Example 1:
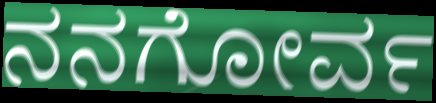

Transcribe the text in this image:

ನನಗೋರ್ವ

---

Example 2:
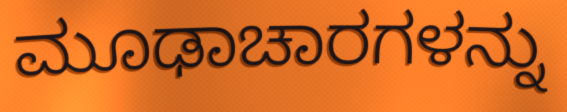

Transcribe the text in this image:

ಮೂಢಾಚಾರಗಳನ್ನು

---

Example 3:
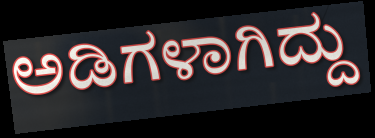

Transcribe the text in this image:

ಅಡಿಗಳಾಗಿದ್ದು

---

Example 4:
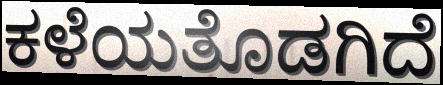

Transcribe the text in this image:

ಕಳೆಯತೊಡಗಿದೆ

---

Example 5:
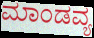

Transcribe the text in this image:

ಮಾಂಡವ್ಯ